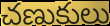
చణుకులు